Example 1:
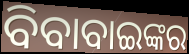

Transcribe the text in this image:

ବିବାବାଇଙ୍କର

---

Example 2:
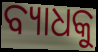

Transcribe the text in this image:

ବ୍ୟାଧକୁ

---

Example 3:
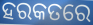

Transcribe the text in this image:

ହରକତରେ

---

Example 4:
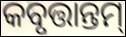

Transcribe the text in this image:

କବୃତ୍ତାନ୍ତମ୍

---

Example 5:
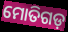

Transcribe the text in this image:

ମୋତିଗଡ଼